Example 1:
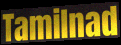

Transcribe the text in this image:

Tamilnad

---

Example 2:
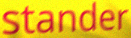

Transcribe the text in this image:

stander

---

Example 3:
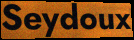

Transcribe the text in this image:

Seydoux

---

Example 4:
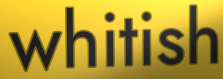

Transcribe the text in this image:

whitish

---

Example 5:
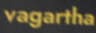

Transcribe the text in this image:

vagartha